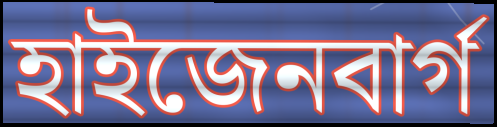
হাইজেনবার্গ